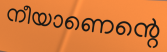
നീയാണെന്റെ